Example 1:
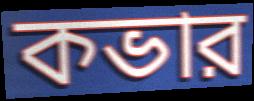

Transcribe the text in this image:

কভার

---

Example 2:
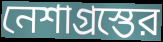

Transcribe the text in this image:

নেশাগ্রস্তের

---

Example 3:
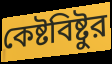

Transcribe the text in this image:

কেষ্টবিষ্টুর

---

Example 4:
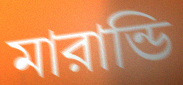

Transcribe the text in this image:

মারান্ডি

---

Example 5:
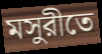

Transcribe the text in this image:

মসুরীতে